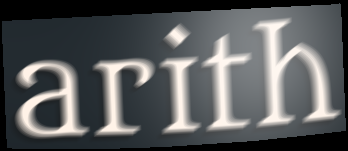
arith